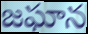
జఘాన